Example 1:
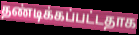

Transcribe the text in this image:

தண்டிக்கப்பட்டதாக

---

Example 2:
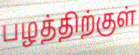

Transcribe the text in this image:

பழத்திற்குள்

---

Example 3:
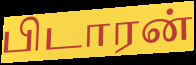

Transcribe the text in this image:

பிடாரன்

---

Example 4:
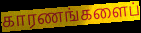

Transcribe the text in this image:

காரணங்களைப்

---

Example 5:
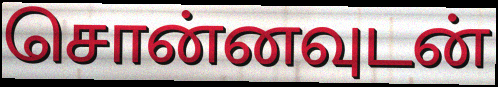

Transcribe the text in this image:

சொன்னவுடன்